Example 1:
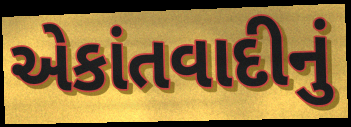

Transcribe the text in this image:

એકાંતવાદીનું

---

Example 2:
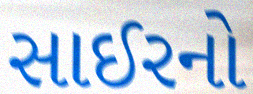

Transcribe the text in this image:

સાઈરનો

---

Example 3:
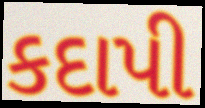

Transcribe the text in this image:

કદાપી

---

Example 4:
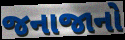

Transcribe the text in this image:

જનાજાનો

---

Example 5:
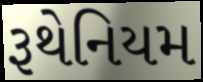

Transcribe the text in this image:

રૂથેનિયમ